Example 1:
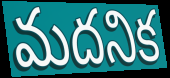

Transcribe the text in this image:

మదనిక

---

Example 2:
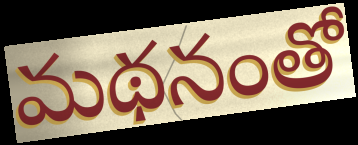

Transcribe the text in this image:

మథనంతో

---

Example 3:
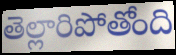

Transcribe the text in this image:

తెల్లారిపోతోంది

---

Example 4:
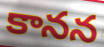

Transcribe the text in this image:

కానన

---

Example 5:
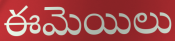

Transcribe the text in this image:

ఈమెయిలు